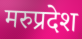
मरुप्रदेश